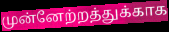
முன்னேற்றத்துக்காக